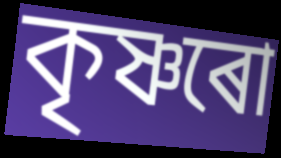
কৃষ্ণৰো